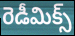
రెడీమిక్స్